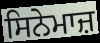
ਸਿਨੇਮਾਜ਼